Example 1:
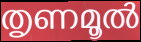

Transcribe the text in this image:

തൃണമൂൽ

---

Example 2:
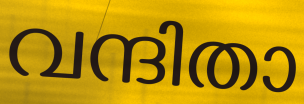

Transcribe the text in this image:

വന്ദിതാ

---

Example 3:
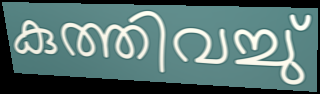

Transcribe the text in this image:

കുത്തിവച്ചു്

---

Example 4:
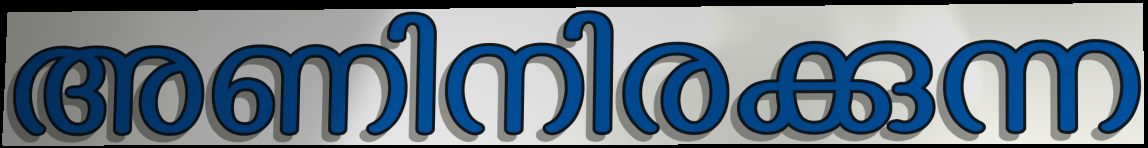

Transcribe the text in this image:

അണിനിരക്കുന്ന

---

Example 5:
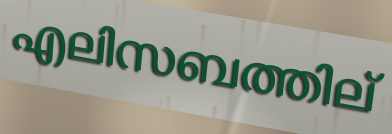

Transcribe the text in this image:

എലിസബത്തില്